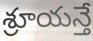
శ్రూయన్తే